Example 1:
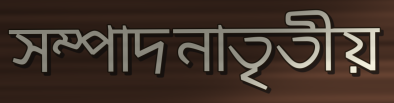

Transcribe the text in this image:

সম্পাদনাতৃতীয়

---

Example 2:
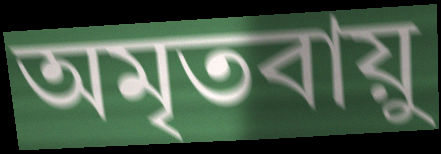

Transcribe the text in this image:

অমৃতবায়ু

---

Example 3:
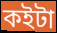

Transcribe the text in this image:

কইটা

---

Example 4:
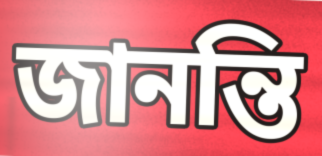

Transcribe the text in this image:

জানন্তি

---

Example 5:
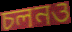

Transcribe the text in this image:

চলনও